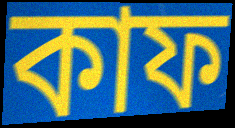
কাফ